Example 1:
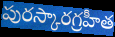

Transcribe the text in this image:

పురస్కారగ్రహీత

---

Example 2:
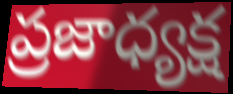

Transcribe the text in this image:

ప్రజాధ్యక్ష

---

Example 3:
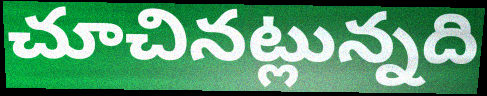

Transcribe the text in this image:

చూచినట్లున్నది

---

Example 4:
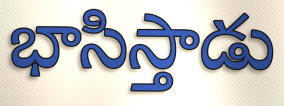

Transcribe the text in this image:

భాసిస్తాడు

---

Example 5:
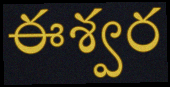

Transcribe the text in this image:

ఈశ్వర